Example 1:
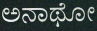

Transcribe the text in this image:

ಅನಾಥೋ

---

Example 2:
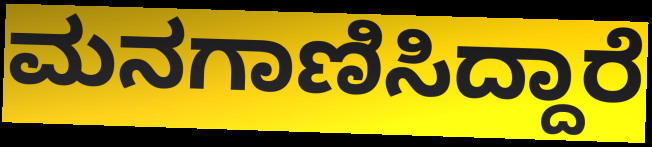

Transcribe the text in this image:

ಮನಗಾಣಿಸಿದ್ದಾರೆ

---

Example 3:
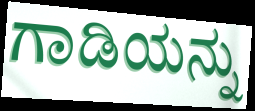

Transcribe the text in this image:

ಗಾಡಿಯನ್ನು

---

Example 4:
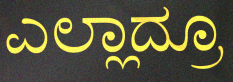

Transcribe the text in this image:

ಎಲ್ಲಾದ್ರೂ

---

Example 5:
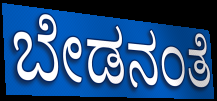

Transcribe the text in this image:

ಬೇಡನಂತೆ